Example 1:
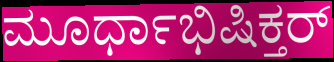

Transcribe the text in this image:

ಮೂರ್ಧಾಭಿಷಿಕ್ತರ್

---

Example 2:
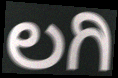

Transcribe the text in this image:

ಲಗಿ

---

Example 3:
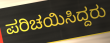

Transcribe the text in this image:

ಪರಿಚಯಿಸಿದ್ದರು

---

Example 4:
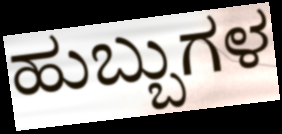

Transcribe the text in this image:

ಹುಬ್ಬುಗಳ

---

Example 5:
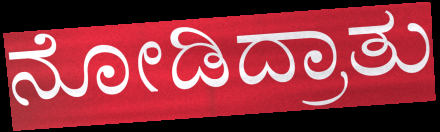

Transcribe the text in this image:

ನೋಡಿದ್ರಾತು